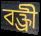
বক্ত্রী